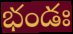
భండః